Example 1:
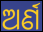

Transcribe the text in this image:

ଅର୍ଣ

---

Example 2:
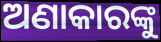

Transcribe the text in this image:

ଅଣାକାରଙ୍କୁ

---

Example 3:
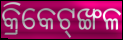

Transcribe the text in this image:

କ୍ରିକେଟ୍‌ଙ୍ଖଳ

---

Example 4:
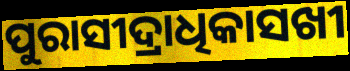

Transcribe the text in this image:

ପୁରାସୀଦ୍ରାଧିକାସଖୀ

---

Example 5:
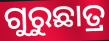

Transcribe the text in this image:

ଗୁରୁଛାତ୍ର